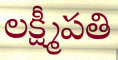
లక్ష్మీపతి